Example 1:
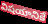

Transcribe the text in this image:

విషయానికే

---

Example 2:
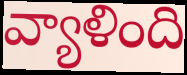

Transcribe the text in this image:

వ్యాళింది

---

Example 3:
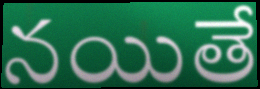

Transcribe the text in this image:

నయితే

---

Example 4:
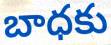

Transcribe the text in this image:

బాధకు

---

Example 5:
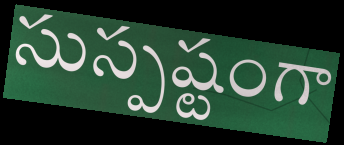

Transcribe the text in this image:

సుస్పష్టంగా